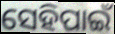
ସେହିପାଇଁ